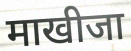
माखीजा